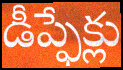
డీప్ఫేక్లు